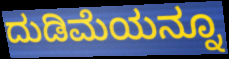
ದುಡಿಮೆಯನ್ನೂ